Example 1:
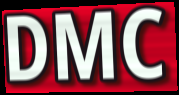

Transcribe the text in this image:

DMC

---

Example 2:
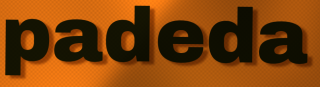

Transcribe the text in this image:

padeda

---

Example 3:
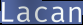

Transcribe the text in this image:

Lacan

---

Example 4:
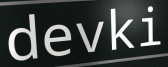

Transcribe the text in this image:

devki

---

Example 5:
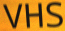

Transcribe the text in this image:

VHS